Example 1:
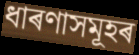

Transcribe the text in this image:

ধাৰণাসমূহৰ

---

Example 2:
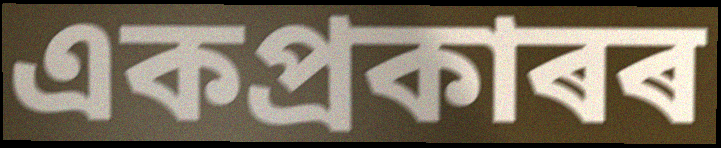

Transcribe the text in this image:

একপ্ৰকাৰৰ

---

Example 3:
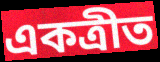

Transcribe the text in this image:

একত্ৰীত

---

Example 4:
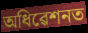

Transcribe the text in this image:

অধিৱেশনত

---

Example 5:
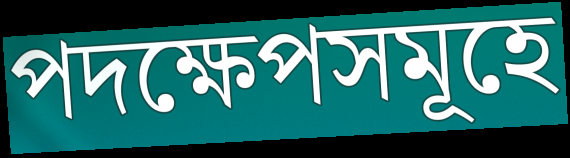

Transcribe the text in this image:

পদক্ষেপসমূহে